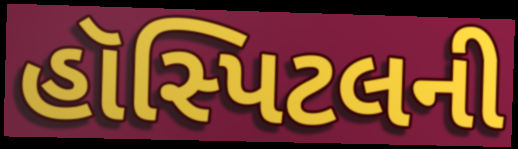
હૉસ્પિટલની